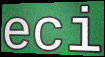
eci